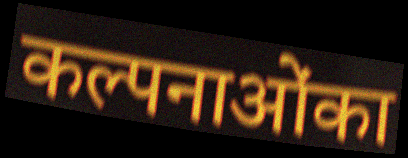
कल्पनाओंका